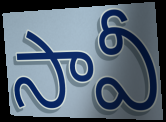
సావీ